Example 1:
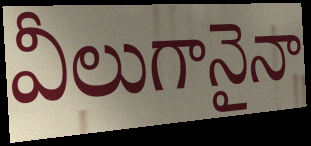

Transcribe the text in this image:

వీలుగానైనా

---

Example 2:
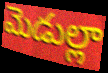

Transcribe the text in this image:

మెడుల్లా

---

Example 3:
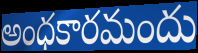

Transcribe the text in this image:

అంధకారమందు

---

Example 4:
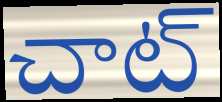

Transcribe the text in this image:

చాట్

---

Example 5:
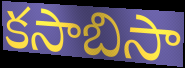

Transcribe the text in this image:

కసాబిసా